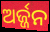
ଅର୍ଜ୍ଜନ